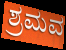
ಶ್ರಮವ